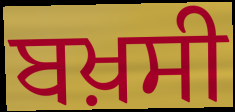
ਬਖ਼ਸੀ